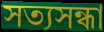
সত্যসন্ধা